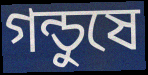
গন্ডুষে